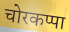
चोरकप्पा